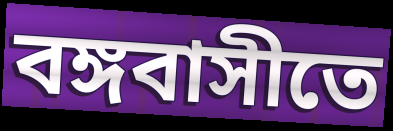
বঙ্গবাসীতে